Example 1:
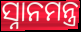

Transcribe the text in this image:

ସ୍ନାନମନ୍ତ୍ର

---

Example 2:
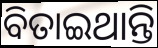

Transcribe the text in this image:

ବିତାଇଥାନ୍ତି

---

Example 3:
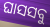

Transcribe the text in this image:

ଘାସସବୁ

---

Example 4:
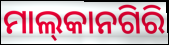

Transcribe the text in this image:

ମାଲ୍‌କାନଗିରି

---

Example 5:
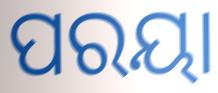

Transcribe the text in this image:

ପରୟା